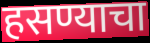
हसण्याचा